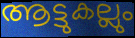
ആട്ടുകല്ലും